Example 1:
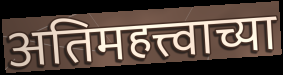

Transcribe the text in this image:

अतिमहत्त्वाच्या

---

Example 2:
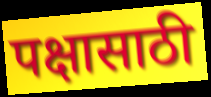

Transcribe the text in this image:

पक्षासाठी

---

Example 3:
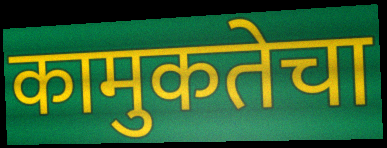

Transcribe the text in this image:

कामुकतेचा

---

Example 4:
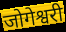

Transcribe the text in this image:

जोगेश्वरी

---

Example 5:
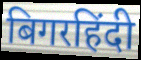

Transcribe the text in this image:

बिगरहिंदी